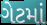
ગેટમાં